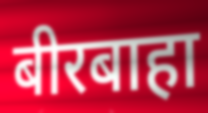
बीरबाहा